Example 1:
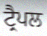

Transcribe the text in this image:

ਟ੍ਰੈਪਲ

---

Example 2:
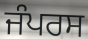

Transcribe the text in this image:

ਜੰਪਰਸ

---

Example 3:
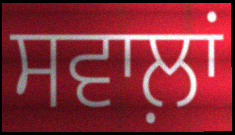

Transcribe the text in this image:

ਸਵਾਲ਼ਾਂ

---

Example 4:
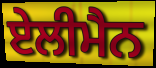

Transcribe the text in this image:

ਏਲੀਮੈਨ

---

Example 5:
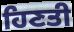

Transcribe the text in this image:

ਹਿਣਤੀ